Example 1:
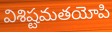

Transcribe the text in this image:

విశిష్టమతయోపి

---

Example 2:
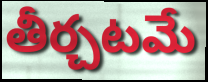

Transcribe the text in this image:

తీర్చటమే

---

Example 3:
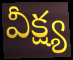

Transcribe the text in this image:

వీక్ష్య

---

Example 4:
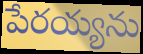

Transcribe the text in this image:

పేరయ్యను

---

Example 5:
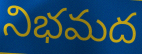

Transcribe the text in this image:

నిభమద